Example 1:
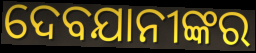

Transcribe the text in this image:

ଦେବଯାନୀଙ୍କର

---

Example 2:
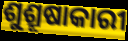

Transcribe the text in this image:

ଶୁଶ୍ରୂଷାକାରୀ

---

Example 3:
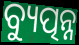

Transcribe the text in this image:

ବ୍ୟୁତ୍ପନ୍ନ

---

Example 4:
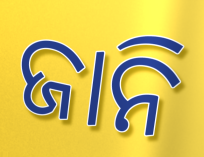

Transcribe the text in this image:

ଜାନି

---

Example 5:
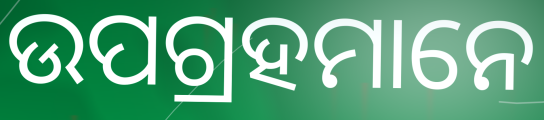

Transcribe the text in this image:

ଉପଗ୍ରହମାନେ